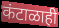
कंटाळाही